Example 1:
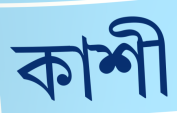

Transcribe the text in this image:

কাশী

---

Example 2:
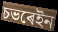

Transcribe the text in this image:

চভৰেইন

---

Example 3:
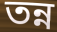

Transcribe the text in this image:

তন্ন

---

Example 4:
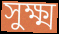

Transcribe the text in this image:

সুক্ষ্ম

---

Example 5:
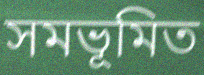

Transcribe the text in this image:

সমভূমিত